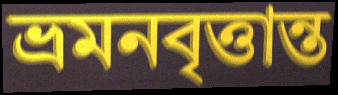
ভ্রমনবৃত্তান্ত